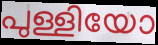
പുള്ളിയോ